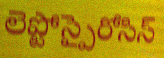
లెప్టోస్పైరోసిస్